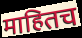
माहितच